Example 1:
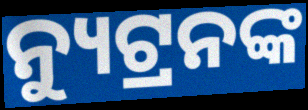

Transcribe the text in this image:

ନ୍ୟୁଟ୍ରନଙ୍କ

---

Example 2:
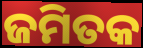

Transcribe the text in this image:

ଜମିତକ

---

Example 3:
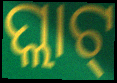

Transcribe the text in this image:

ପ୍ଲାଟ୍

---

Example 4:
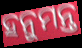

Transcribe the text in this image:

ହନୁମନ୍ତ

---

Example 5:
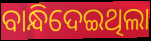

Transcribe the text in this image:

ବାନ୍ଧିଦେଇଥିଲା